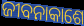
ଜୀବନାକାଶେ